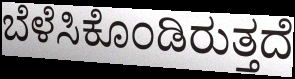
ಬೆಳೆಸಿಕೊಂಡಿರುತ್ತದೆ